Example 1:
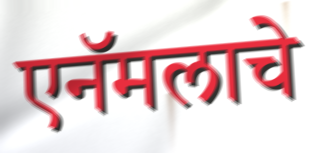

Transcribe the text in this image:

एनॅमलाचे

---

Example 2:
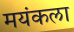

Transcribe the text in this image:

मयंकला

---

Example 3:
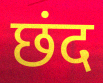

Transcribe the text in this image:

छंद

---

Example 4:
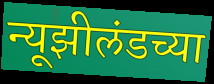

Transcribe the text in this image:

न्यूझीलंडच्या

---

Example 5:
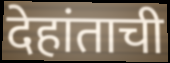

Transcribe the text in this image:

देहांताची